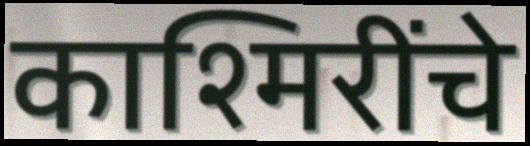
काश्मिरींचे